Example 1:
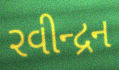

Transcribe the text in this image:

રવીન્દ્રન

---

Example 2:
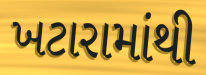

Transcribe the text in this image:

ખટારામાંથી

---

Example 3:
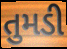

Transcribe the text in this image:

તુમડી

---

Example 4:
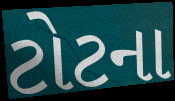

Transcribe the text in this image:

ટોટના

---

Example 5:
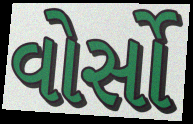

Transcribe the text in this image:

વોર્સો